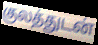
குலத்துடன்